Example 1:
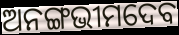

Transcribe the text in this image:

ଅନଙ୍ଗଭୀମଦେବ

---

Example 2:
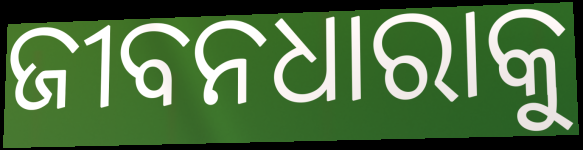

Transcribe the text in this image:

ଜୀବନଧାରାକୁ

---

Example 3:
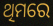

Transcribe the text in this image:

ଥିମରେ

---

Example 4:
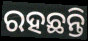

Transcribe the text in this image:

ରହଛନ୍ତି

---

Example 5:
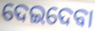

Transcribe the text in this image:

ଦେଇଦେବା